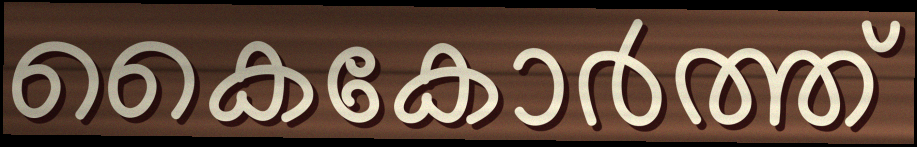
കൈകോർത്ത്